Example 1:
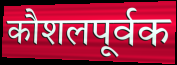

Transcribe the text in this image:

कौशलपूर्वक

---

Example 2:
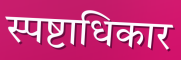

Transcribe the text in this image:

स्पष्टाधिकार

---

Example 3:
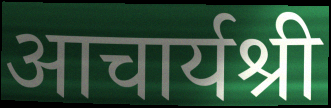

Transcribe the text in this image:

आचार्यश्री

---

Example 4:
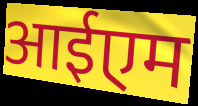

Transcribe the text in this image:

आईएम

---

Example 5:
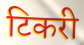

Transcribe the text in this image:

टिकरी